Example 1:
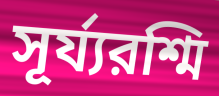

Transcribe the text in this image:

সূর্য্যরশ্মি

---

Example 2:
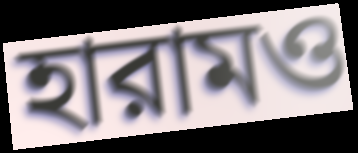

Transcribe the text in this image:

হারামও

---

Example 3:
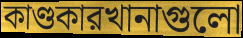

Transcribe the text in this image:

কাণ্ডকারখানাগুলো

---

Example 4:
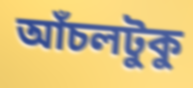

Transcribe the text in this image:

আঁচলটুকু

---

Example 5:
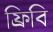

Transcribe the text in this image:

ফ্রিবি